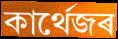
কাৰ্থেজৰ